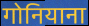
गोनियाना